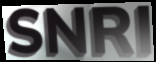
SNRI